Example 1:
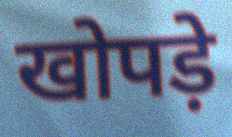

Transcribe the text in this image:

खोपड़े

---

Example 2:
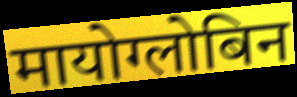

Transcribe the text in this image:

मायोग्लोबिन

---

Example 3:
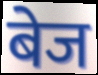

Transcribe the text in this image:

बेज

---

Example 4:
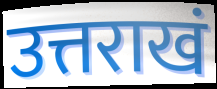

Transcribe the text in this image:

उत्तराखं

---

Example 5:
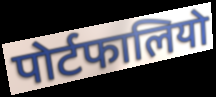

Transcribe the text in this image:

पोर्टफालियो